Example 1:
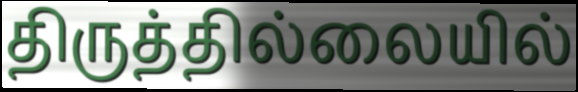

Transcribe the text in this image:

திருத்தில்லையில்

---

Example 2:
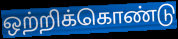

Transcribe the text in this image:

ஒற்றிக்கொண்டு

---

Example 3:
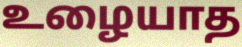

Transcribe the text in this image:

உழையாத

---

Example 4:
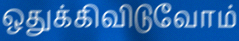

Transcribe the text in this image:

ஒதுக்கிவிடுவோம்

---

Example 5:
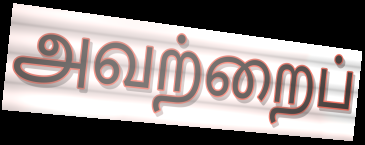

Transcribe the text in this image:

அவற்றைப்